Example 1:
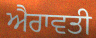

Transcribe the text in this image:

ਐਰਾਵਤੀ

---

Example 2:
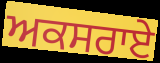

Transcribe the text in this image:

ਅਕਸਰਾਏ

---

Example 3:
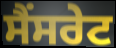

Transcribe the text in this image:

ਸੈਂਸਰੇਟ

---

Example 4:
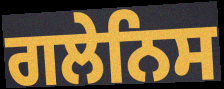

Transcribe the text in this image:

ਗਲੇਨਿਸ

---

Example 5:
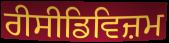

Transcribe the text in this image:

ਰੀਸੀਡਿਵਿਜ਼ਮ